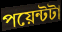
পয়েন্টটা